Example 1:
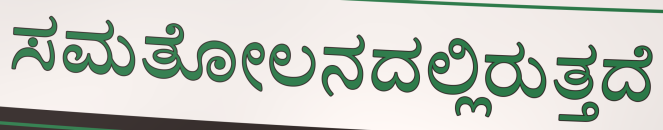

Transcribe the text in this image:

ಸಮತೋಲನದಲ್ಲಿರುತ್ತದೆ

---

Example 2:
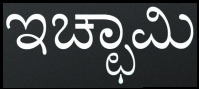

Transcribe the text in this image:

ಇಚ್ಛಾಮಿ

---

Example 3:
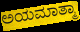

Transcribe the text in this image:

ಅಯಮಾತ್ಮಾ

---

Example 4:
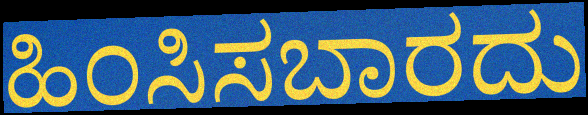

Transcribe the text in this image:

ಹಿಂಸಿಸಬಾರದು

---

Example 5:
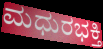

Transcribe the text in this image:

ಮಧುರಭಕ್ತಿ